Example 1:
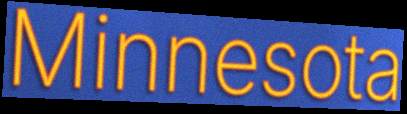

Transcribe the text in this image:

Minnesota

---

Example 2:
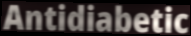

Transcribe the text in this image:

Antidiabetic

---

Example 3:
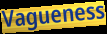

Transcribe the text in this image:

Vagueness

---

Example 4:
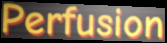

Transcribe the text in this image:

Perfusion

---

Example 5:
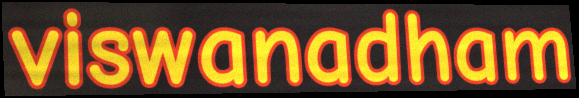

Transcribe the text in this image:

viswanadham